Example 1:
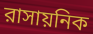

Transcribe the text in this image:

রাসায়নিক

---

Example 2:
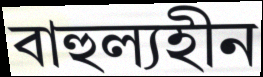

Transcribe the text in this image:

বাহুল্যহীন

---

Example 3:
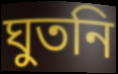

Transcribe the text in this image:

ঘুতনি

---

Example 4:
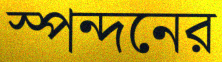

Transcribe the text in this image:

স্পন্দনের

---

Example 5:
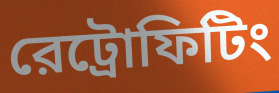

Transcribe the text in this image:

রেট্রোফিটিং